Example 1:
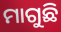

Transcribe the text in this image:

ମାଗୁଛି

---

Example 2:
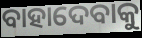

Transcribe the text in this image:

ବାହାଦେବାକୁ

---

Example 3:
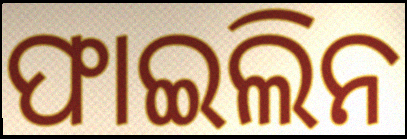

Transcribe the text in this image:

ଫାଇଲିନ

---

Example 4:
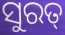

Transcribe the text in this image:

ସୁରତ୍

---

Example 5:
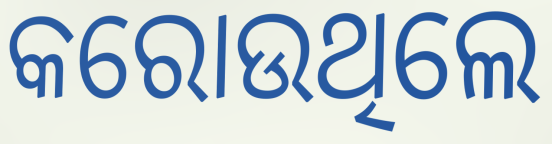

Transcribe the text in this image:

କରୋଉଥିଲେ